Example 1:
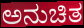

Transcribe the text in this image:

ಅನುಚಿತ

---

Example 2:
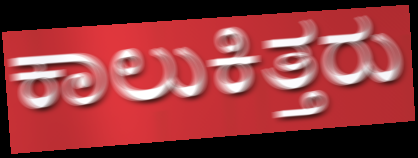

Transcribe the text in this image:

ಕಾಲುಕಿತ್ತರು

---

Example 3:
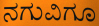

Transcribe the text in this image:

ನಗುವಿಗೂ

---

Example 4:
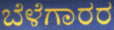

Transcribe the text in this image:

ಬೆಳೆಗಾರರ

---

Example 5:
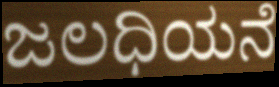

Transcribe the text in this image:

ಜಲಧಿಯನೆ